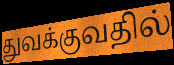
துவக்குவதில்